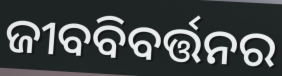
ଜୀବବିବର୍ତ୍ତନର